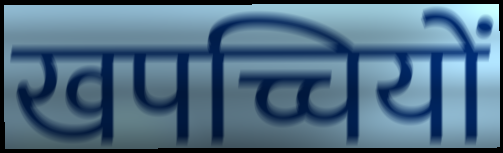
खपच्चियों